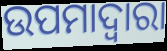
ଉପମାଦ୍ୱାରା